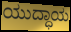
ಯುದ್ಧಾಯ